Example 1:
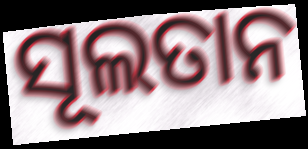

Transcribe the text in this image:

ସୂଲତାନ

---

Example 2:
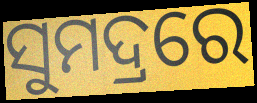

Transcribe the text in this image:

ସୁମଦ୍ରରେ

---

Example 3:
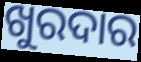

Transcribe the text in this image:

ଖୁରଦାର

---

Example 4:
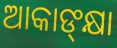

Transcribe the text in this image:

ଆକାଙ୍କ୍ଷା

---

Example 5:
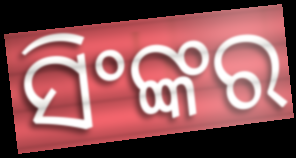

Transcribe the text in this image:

ସିଂଙ୍କର